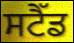
ਸਟੈੱਡ